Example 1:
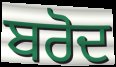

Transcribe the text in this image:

ਬਰੋਦ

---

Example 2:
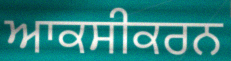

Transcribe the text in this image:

ਆਕਸੀਕਰਨ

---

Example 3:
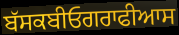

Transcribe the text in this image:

ਬੱਸਕਬੀਓਗਰਾਫੀਆਸ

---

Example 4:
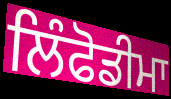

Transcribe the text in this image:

ਲਿੰਫੋਡੀਮਾ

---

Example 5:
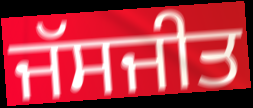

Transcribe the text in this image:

ਜੱਸਜੀਤ